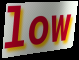
low